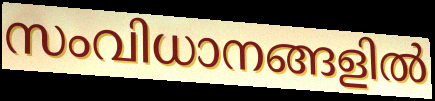
സംവിധാനങ്ങളിൽ